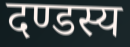
दण्डस्य